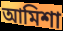
আমিশা